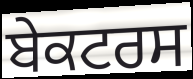
ਬੇਕਟਰਸ